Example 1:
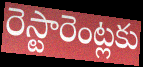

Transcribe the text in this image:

రెస్టారెంట్లకు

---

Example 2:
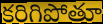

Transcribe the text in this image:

కరిగిపోతూ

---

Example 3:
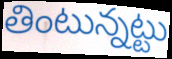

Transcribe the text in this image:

తింటున్నట్టు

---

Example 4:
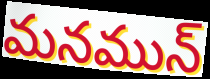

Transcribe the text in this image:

మనమున్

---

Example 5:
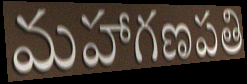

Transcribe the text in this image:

మహాగణపతి